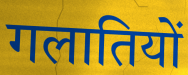
गलातियों